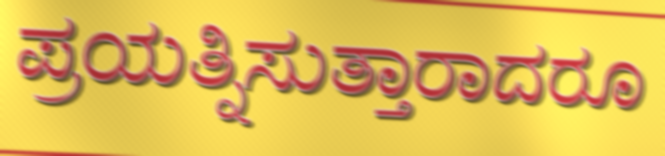
ಪ್ರಯತ್ನಿಸುತ್ತಾರಾದರೂ